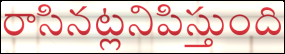
రాసినట్లనిపిస్తుంది